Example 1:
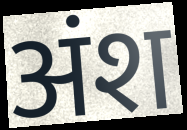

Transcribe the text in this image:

अंश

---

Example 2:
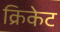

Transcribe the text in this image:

क्रिकेट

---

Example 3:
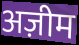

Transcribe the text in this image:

अज़ीम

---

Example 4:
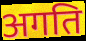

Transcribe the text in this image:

अगति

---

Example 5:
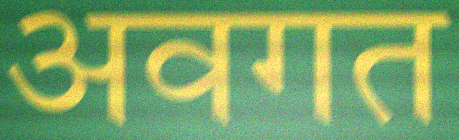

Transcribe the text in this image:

अवगत